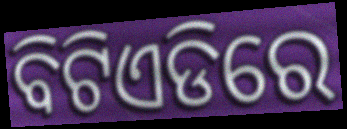
ବିଟିଏଡିରେ